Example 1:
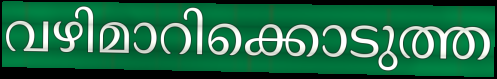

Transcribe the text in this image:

വഴിമാറിക്കൊടുത്ത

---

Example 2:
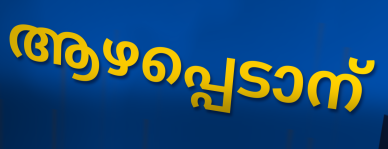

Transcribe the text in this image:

ആഴപ്പെടാന്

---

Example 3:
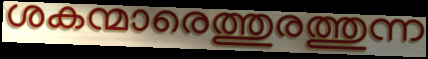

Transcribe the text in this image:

ശകന്മാരെത്തുരത്തുന്ന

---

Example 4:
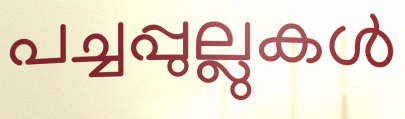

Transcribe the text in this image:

പച്ചപ്പുല്ലുകൾ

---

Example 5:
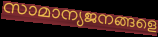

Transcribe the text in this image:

സാമാന്യജനങ്ങളെ